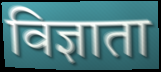
विज्ञाता